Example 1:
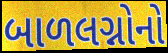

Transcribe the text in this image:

બાળલગ્નોનો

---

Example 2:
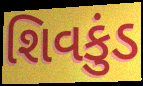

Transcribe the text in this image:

શિવકુંડ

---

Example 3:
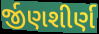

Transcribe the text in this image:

ર્જીણશીર્ણ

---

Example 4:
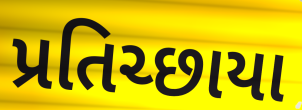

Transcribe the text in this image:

પ્રતિચ્છાયા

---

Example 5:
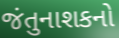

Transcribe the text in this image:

જંતુનાશકનો